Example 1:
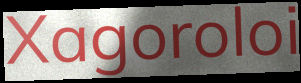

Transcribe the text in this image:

Xagoroloi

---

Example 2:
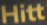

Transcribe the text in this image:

Hitt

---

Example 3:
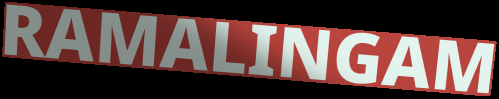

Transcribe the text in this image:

RAMALINGAM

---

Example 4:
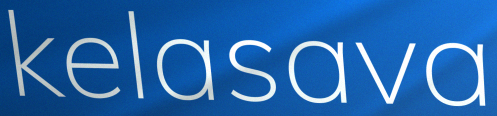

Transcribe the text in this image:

kelasava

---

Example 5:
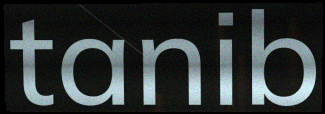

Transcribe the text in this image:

tanib